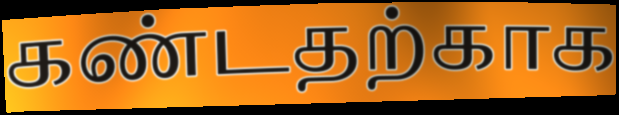
கண்டதற்காக